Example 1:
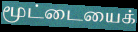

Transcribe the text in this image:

மூட்டையைக்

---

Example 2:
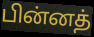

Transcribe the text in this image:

பின்னத்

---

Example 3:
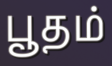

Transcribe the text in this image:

பூதம்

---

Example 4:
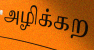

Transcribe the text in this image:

அழிக்கற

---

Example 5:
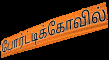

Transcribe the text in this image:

போர்ட்டிக்கோவில்